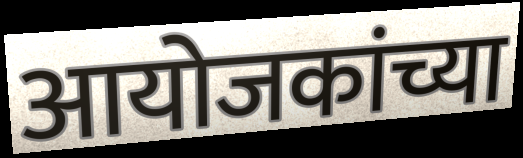
आयोजकांच्या